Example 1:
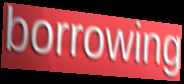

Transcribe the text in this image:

borrowing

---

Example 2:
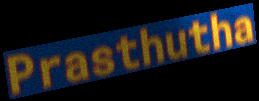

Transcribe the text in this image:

Prasthutha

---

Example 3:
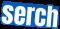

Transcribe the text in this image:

serch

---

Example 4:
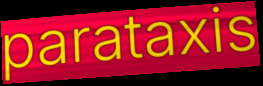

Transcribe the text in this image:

parataxis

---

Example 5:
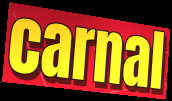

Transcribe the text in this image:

carnal